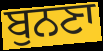
ਬੁਨਣਾ